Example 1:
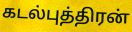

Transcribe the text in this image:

கடல்புத்திரன்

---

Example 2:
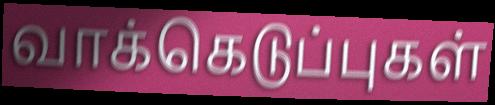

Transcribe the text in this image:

வாக்கெடுப்புகள்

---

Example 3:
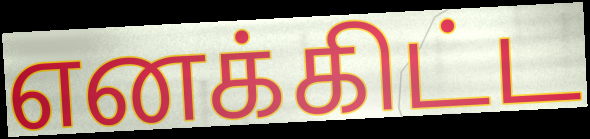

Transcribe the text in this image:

எனக்கிட்ட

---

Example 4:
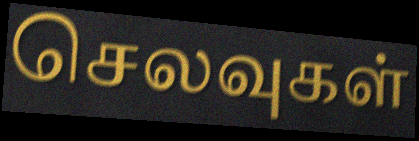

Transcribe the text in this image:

செலவுகள்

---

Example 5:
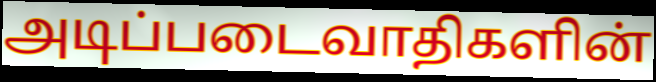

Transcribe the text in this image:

அடிப்படைவாதிகளின்